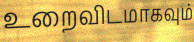
உறைவிடமாகவும்